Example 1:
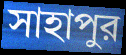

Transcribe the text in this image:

সাহাপুর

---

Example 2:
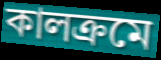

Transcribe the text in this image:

কালক্রমে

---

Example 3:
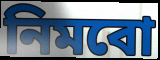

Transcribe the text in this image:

নিমবো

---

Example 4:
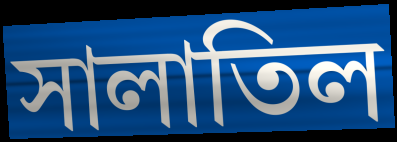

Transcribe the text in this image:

সালাতিল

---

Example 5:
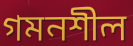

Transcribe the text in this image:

গমনশীল